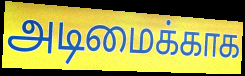
அடிமைக்காக